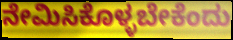
ನೇಮಿಸಿಕೊಳ್ಳಬೇಕೆಂದು